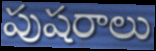
పుషరాలు